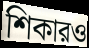
শিকারও